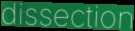
dissection